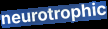
neurotrophic